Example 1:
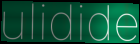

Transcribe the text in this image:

ulidide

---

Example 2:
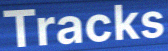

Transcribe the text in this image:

Tracks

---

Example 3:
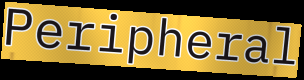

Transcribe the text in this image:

Peripheral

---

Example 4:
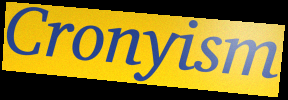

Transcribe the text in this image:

Cronyism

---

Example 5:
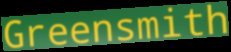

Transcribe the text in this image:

Greensmith